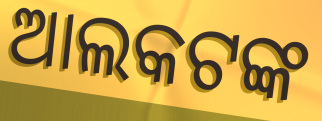
ଆଲକଟଙ୍କ